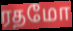
ரதமோ